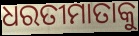
ଧରତୀମାତାକୁ